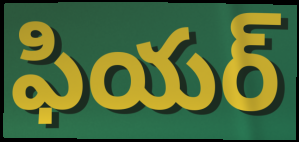
ఫియర్